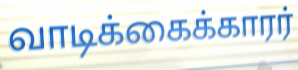
வாடிக்கைக்காரர்